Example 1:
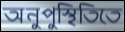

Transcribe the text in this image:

অনুপুস্থিতিতে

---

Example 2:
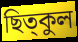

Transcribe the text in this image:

ছিত্কুল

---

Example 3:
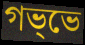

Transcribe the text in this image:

গভ্ভে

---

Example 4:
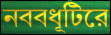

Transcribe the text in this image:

নববধূটিরে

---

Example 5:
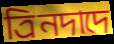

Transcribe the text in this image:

ত্রিনদাদে